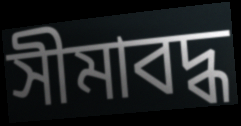
সীমাবদ্ধ